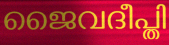
ജൈവദീപ്തി